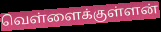
வெள்ளைக்குள்ளன்